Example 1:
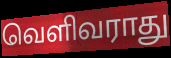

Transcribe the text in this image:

வெளிவராது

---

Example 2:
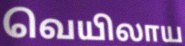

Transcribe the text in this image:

வெயிலாய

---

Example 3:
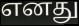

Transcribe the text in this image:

எனது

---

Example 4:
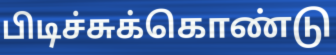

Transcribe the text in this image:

பிடிச்சுக்கொண்டு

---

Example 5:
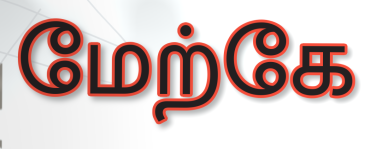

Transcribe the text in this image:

மேற்கே